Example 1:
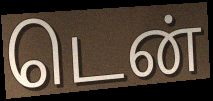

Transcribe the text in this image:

டென்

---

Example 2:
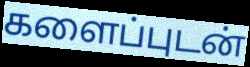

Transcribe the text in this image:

களைப்புடன்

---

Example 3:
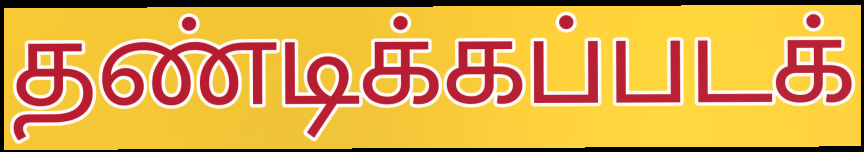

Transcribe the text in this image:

தண்டிக்கப்படக்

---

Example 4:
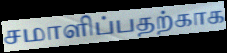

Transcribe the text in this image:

சமாளிப்பதற்காக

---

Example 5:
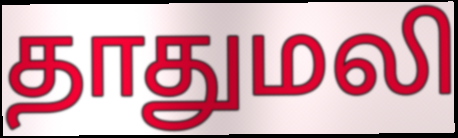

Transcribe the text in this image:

தாதுமலி